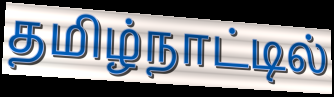
தமிழ்நாட்டில்